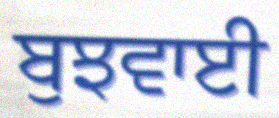
ਬੁਝਵਾਈ